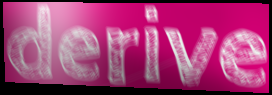
derive